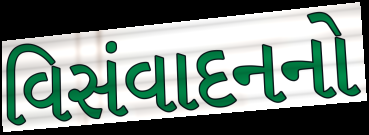
વિસંવાદનનો